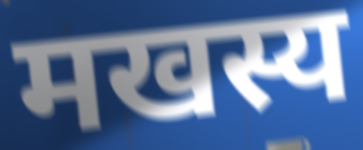
मखस्य